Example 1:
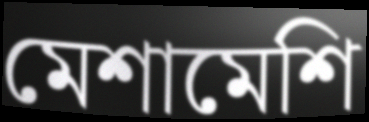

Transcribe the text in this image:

মেশামেশি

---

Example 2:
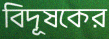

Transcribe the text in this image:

বিদূষকের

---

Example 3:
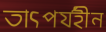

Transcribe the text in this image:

তাৎপর্যহীন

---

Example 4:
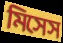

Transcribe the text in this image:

মিসেস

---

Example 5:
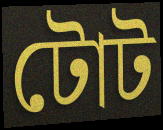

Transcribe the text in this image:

টোট